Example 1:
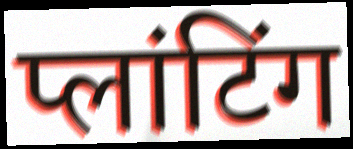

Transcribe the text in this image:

प्लांटिंग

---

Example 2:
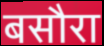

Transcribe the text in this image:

बसौरा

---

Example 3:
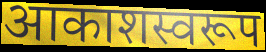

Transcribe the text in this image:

आकाशस्वरूप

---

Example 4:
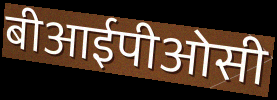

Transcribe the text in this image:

बीआईपीओसी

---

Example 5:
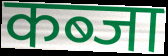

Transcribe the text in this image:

कब्‍जा